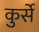
कुर्से